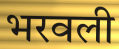
भरवली